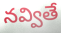
నవ్వితే